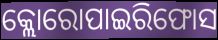
କ୍ଲୋରୋପାଇରିଫୋସ